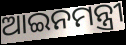
ଆଇନମନ୍ତ୍ରୀ